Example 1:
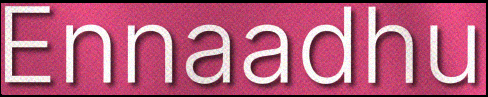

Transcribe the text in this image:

Ennaadhu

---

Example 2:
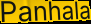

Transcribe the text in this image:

Panhala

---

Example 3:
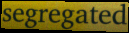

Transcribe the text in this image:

segregated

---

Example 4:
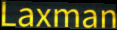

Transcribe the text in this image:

Laxman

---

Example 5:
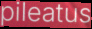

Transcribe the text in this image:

pileatus